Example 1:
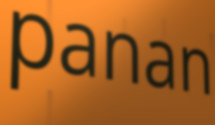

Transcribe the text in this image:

panan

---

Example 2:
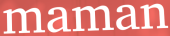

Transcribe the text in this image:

maman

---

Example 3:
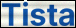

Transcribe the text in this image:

Tista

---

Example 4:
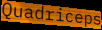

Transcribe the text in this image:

Quadriceps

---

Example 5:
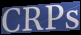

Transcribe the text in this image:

CRPs